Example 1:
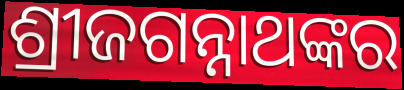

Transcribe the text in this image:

ଶ୍ରୀଜଗନ୍ନାଥଙ୍କର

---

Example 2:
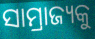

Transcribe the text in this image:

ସାମ୍ରାଜ୍ୟକୁ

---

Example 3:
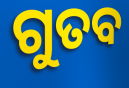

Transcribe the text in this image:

ଗୁତବ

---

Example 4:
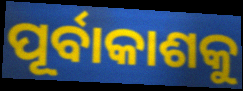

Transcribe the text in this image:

ପୂର୍ବାକାଶକୁ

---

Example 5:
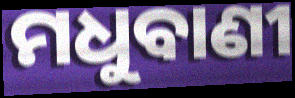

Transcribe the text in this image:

ମଧୁବାଣୀ